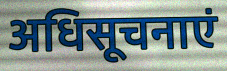
अधिसूचनाएं